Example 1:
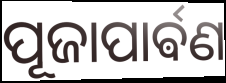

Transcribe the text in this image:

ପୂଜାପାର୍ଵଣ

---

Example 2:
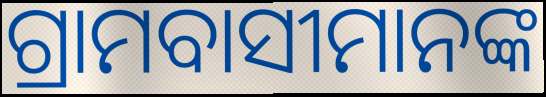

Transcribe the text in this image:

ଗ୍ରାମବାସୀମାନଙ୍କ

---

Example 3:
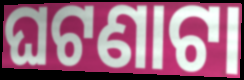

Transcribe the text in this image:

ଘଟଣାଟା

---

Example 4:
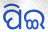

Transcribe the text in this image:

ପିଇ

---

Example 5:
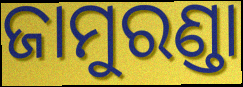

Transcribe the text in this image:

ଜାମୁରଣ୍ଡା